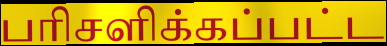
பரிசளிக்கப்பட்ட